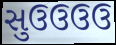
સુઉઉઉઉ